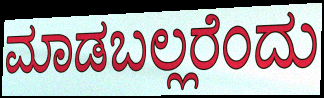
ಮಾಡಬಲ್ಲರೆಂದು